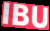
IBU